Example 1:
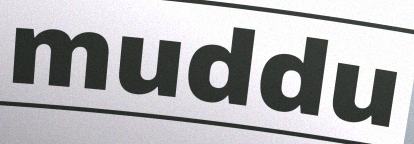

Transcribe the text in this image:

muddu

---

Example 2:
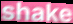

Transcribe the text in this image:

shake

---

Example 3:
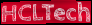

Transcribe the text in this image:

HCLTech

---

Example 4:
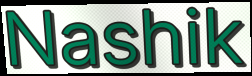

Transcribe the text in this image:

Nashik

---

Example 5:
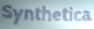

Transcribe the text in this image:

Synthetica